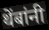
थेंबांनी